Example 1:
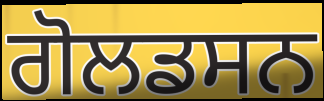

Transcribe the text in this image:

ਗੋਲਡਸਨ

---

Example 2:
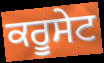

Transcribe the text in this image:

ਕਰੂਸੇਟ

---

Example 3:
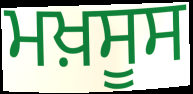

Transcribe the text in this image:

ਮਖ਼ਸੂਸ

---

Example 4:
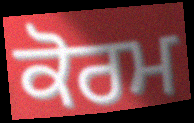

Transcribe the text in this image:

ਕੋਰਮ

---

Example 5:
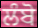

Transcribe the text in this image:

ਲੰਬੋ